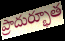
ప్రాదుర్భూత